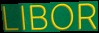
LIBOR